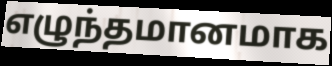
எழுந்தமானமாக